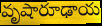
వృషారూఢాయ